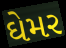
ઘેમર